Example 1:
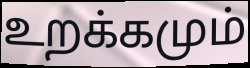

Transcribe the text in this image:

உறக்கமும்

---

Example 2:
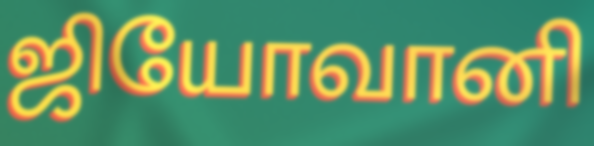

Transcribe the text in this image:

ஜியோவானி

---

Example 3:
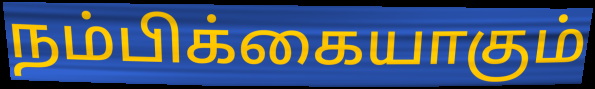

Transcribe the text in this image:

நம்பிக்கையாகும்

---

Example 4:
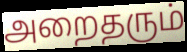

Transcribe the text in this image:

அறைதரும்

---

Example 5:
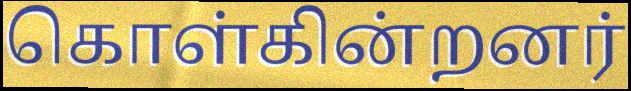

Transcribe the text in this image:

கொள்கின்றனர்